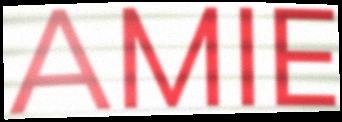
AMIE